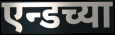
एन्डच्या